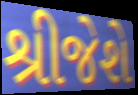
શ્રીજેશે